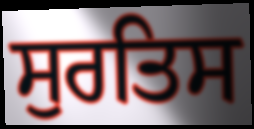
ਸੁਰਤਿਸ